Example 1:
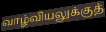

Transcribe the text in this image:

வாழ்வியலுக்குத்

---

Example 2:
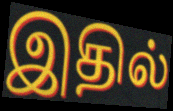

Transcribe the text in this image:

இதில்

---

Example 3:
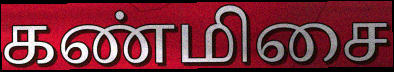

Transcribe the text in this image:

கண்மிசை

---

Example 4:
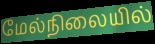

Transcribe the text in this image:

மேல்நிலையில்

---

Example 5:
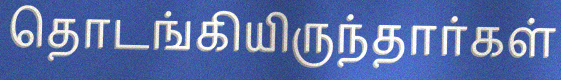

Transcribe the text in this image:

தொடங்கியிருந்தார்கள்